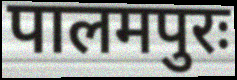
पालमपुरः